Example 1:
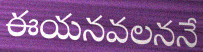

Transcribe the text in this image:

ఈయనవలననే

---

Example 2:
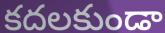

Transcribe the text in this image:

కదలకుండా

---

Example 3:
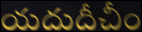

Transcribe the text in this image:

యదుదీచీం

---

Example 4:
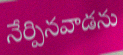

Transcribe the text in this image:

నేర్పినవాడను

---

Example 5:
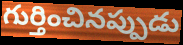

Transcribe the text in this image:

గుర్తించినప్పుడు